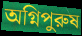
অগ্নিপুরুষ